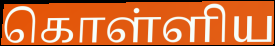
கொள்ளிய